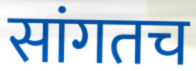
सांगतच